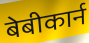
बेबीकार्न